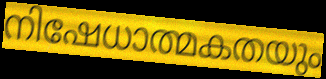
നിഷേധാത്മകതയും